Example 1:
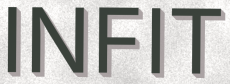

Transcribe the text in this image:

INFIT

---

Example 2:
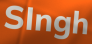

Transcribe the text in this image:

SIngh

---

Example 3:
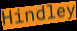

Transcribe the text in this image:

Hindley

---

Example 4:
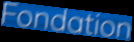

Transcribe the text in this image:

Fondation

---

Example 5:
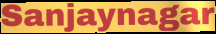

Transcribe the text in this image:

Sanjaynagar